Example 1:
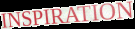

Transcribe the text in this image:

INSPIRATION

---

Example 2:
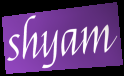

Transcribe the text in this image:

shyam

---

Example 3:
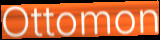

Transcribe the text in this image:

Ottomon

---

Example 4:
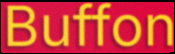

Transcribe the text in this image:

Buffon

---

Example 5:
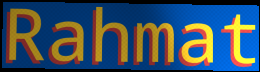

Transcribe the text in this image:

Rahmat